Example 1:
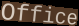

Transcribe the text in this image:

Office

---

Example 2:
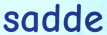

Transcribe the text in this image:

sadde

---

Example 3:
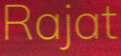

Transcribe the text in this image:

Rajat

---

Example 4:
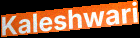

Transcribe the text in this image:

Kaleshwari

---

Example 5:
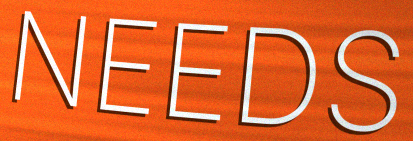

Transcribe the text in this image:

NEEDS